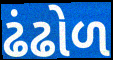
ઢંઢોળ